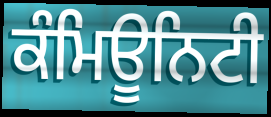
ਕੰਮਿਊਨਿਟੀ